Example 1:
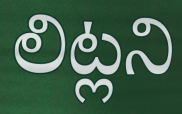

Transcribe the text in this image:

లిట్లని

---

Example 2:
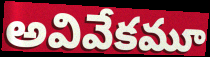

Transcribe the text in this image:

అవివేకమూ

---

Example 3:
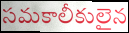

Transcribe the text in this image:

సమకాలీకులైన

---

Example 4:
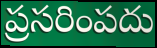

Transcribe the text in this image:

ప్రసరింపదు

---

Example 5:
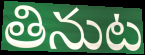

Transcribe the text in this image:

తినుట